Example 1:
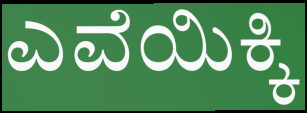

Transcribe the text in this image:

ಎವೆಯಿಕ್ಕಿ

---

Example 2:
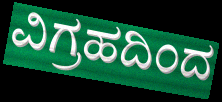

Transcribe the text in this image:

ವಿಗ್ರಹದಿಂದ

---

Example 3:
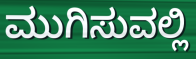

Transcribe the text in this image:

ಮುಗಿಸುವಲ್ಲಿ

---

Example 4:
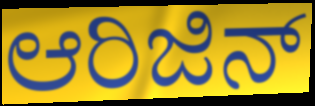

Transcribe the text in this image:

ಆರಿಜಿನ್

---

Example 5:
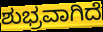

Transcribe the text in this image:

ಶುಭ್ರವಾಗಿದೆ